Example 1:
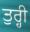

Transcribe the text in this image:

ਤੁਰ੍ਹੀ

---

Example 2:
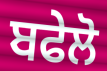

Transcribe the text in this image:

ਬਫੇਲੋ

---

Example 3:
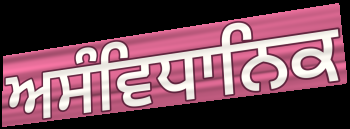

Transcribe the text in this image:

ਅਸੰਵਿਧਾਨਿਕ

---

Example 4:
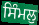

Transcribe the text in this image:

ਸਿੰਮਲੁ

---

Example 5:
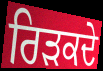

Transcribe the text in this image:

ਰਿੜਕਦੇ